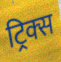
ट्रिक्‍स